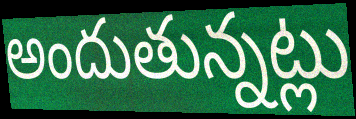
అందుతున్నట్లు